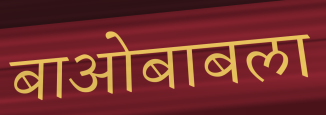
बाओबाबला